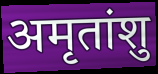
अमृतांशु